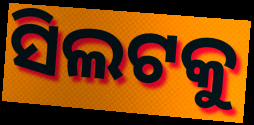
ସିଲଟକୁ